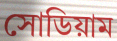
সোডিয়াম